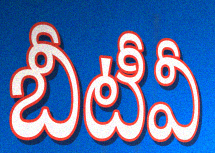
బీటీవీ